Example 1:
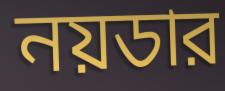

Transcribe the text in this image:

নয়ডার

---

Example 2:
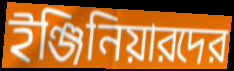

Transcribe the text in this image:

ইঞ্জিনিয়ারদের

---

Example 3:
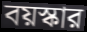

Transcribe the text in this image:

বয়স্কার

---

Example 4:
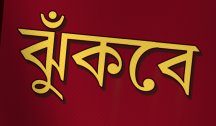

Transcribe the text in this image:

ঝুঁকবে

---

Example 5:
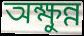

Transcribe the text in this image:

অক্ষুন্ন